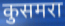
कुसमरा